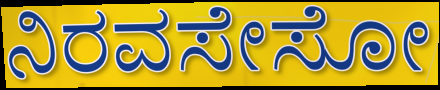
ನಿರವಸೇಸೋ